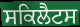
ਸਕਿਲੈਟਸ